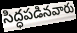
సిద్ధపడినవారు